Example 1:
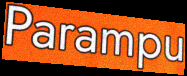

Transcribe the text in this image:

Parampu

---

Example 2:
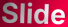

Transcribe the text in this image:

Slide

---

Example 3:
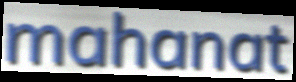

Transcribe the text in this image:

mahanat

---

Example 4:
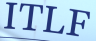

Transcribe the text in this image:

ITLF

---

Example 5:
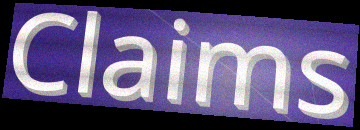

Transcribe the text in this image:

Claims